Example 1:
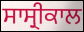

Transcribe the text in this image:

ਸਾਸ੍ਰੀਕਾਲ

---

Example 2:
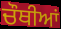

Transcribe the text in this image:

ਚੌਥੀਆਂ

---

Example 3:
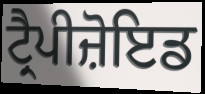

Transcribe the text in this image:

ਟ੍ਰੈਪੀਜ਼ੋਇਡ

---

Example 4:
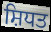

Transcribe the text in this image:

ਸ਼ਿਧਤ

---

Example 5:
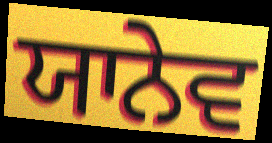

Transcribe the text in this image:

ਯਾਨੇਵ